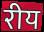
रीय